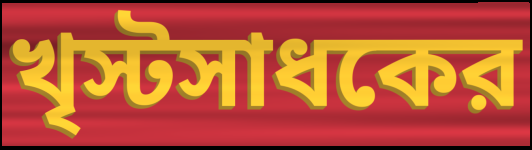
খৃস্টসাধকের